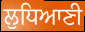
ਲੁਧਿਆਣੀ